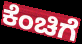
ಕೆಂಚಿಗೆ